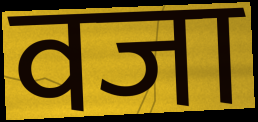
वजा